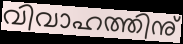
വിവാഹത്തിനു്